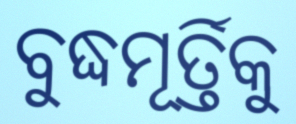
ବୁଦ୍ଧମୂର୍ତ୍ତିକୁ